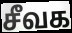
சீவக